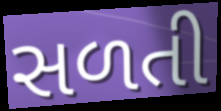
સળતી